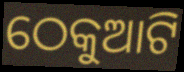
ଠେକୁଆଟି